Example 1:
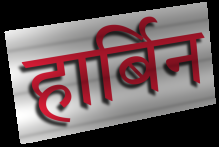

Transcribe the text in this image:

हार्बिन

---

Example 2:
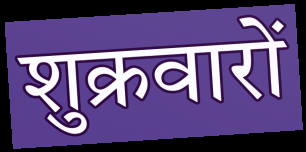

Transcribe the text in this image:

शुक्रवारों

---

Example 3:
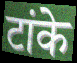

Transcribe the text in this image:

टांके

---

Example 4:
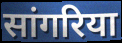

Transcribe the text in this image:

सांगरिया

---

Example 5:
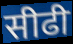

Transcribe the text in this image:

सीढी